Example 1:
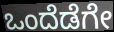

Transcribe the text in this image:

ಒಂದೆಡೆಗೇ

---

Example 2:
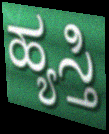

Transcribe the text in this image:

ಹ್ಯಸ್ತಿ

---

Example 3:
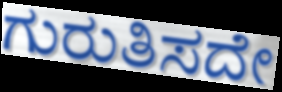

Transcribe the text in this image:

ಗುರುತಿಸದೇ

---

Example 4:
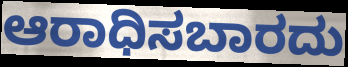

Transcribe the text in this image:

ಆರಾಧಿಸಬಾರದು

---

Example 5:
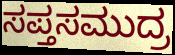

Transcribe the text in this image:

ಸಪ್ತಸಮುದ್ರ